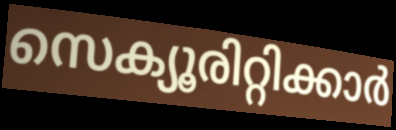
സെക്യൂരിറ്റിക്കാർ